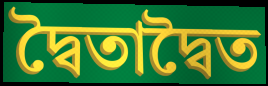
দ্বৈতাদ্বৈত